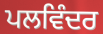
ਪਲਵਿੰਦਰ